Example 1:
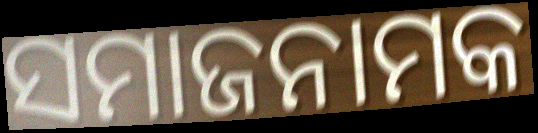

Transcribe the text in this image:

ସମାଜନାମକ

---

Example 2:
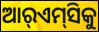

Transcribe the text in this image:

ଆର୍‌ଏମ୍‌ସିକୁ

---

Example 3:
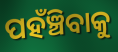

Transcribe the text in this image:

ପହଁଞ୍ଚିବାକୁ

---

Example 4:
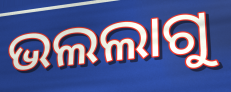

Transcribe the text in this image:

ଭଲଲାଗୁ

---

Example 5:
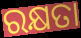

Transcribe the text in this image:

ରକ୍ଷତା